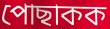
পোছাকক